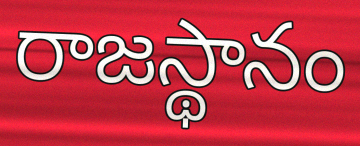
రాజస్థానం